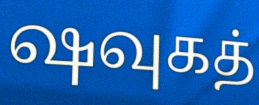
ஷவுகத்